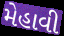
મેહાવી